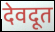
देवदूत